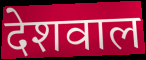
देशवाल